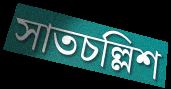
সাতচল্লিশ